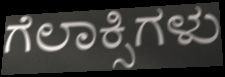
ಗೆಲಾಕ್ಸಿಗಳು